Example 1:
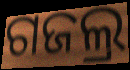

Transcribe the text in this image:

ଗଜଲ୍ର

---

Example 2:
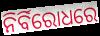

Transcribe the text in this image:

ନିର୍ବିରୋଧରେ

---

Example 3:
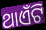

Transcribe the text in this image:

ଥାଏଁଟି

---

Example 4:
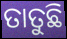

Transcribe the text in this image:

ତାତୁଛି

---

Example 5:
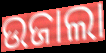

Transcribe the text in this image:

ଉଜାଲା